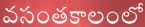
వసంతకాలంలో